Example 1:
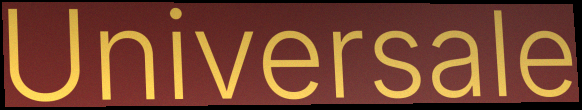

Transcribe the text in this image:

Universale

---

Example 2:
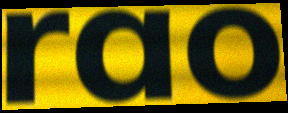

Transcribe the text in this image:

rao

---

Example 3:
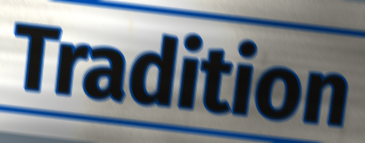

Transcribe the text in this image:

Tradition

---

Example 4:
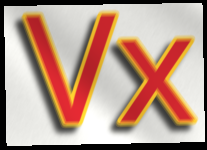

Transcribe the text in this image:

Vx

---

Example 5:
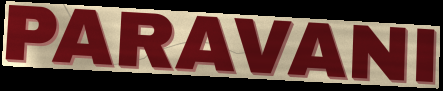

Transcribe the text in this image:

PARAVANI